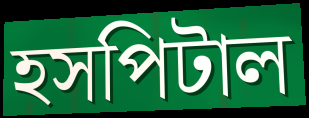
হসপিটাল